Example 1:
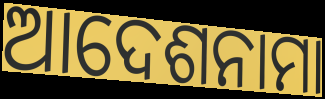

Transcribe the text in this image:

ଆଦେଶନାମା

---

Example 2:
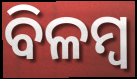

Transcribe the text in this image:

ବିଳମ୍ଵ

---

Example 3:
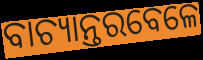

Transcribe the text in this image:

ବାଚ୍ୟାନ୍ତରବେଳେ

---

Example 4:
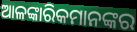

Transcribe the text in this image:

ଆଳଙ୍କାରିକମାନଙ୍କର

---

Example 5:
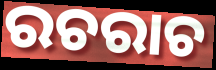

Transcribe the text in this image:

ରଚରାଚ